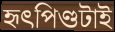
হৃৎপিণ্ডটাই